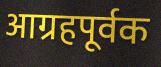
आग्रहपूर्वक